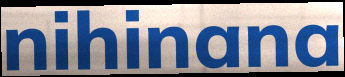
nihinana